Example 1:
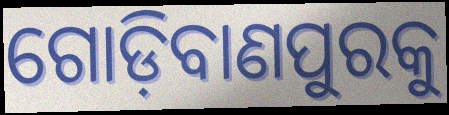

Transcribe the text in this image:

ଗୋଡ଼ିବାଣପୁରକୁ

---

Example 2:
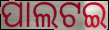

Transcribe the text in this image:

ପାଲଟଇ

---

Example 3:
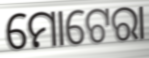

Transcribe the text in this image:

ମୋଟେରା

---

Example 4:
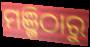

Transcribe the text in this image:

ମଞ୍ଜିଠାରୁ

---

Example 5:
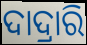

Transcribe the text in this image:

ଦାଦ୍ରାରି